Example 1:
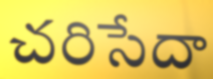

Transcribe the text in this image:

చరిసేదా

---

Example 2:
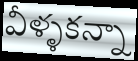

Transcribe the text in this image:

వీళ్ళకన్నా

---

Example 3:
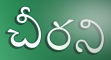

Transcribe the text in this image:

చీరని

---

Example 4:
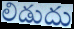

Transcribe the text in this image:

లిడుదు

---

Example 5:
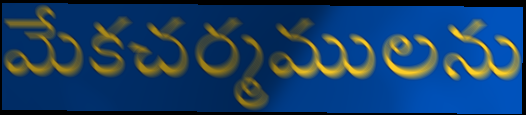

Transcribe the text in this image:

మేకచర్మములను